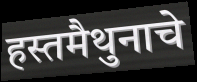
हस्तमैथुनाचे